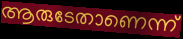
ആരുടേതാണെന്ന്